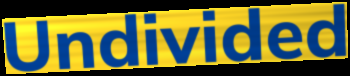
Undivided